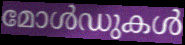
മോൾഡുകൾ